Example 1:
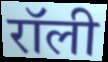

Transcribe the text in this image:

रॉली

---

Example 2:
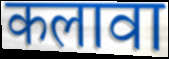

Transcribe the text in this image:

कलावा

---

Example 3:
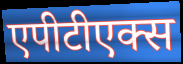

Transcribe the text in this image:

एपीटीएक्स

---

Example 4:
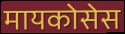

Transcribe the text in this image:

मायकोसेस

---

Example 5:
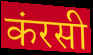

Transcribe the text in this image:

कंरसी